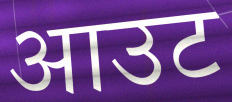
आउट